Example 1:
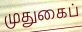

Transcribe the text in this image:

முதுகைப்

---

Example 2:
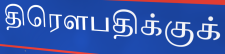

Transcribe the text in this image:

திரௌபதிக்குக்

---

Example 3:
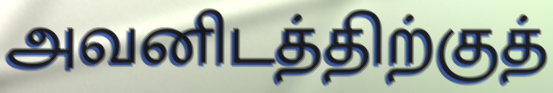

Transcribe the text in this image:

அவனிடத்திற்குத்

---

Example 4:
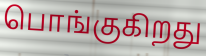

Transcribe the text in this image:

பொங்குகிறது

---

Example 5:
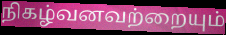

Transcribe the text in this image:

நிகழ்வனவற்றையும்